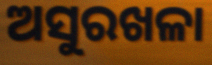
ଅସୁରଖଳା